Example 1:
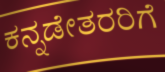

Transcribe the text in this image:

ಕನ್ನಡೇತರರಿಗೆ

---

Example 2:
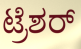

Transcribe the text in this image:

ಟ್ರೆಶರ್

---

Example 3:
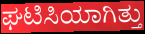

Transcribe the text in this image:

ಘಟಿಸಿಯಾಗಿತ್ತು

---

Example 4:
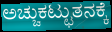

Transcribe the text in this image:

ಅಚ್ಚುಕಟ್ಟುತನಕ್ಕೆ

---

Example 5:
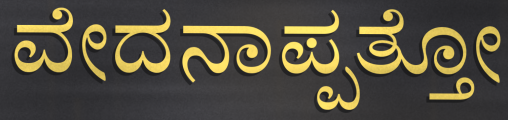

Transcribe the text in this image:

ವೇದನಾಪ್ಪತ್ತೋ